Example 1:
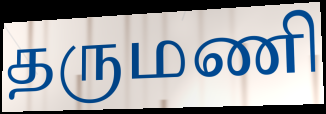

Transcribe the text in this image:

தருமணி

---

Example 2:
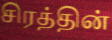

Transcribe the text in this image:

சிரத்தின்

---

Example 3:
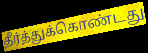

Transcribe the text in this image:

தீர்த்துக்கொண்டது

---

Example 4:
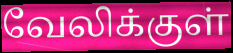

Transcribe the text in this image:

வேலிக்குள்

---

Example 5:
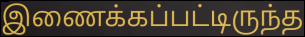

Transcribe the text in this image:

இணைக்கப்பட்டிருந்த